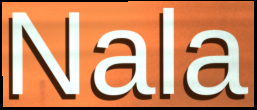
Nala